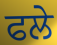
ਫਲੇ